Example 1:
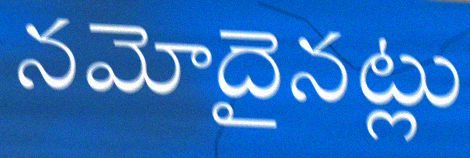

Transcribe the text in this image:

నమోదైనట్లు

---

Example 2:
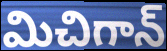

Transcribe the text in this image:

మిచిగాన్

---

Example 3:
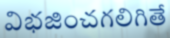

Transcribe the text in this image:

విభజించగలిగితే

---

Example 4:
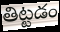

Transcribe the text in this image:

తిట్టడం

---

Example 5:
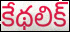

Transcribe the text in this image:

కేథలిక్